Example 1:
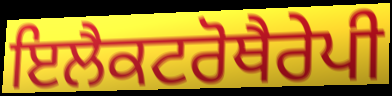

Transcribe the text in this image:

ਇਲੈਕਟਰੋਥੈਰੇਪੀ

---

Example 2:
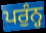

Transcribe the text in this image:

ਪਰੁੰਨ੍ਹ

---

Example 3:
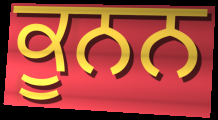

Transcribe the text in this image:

ਕੂਨਨ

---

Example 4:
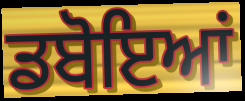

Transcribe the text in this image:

ਡਬੋਇਆਂ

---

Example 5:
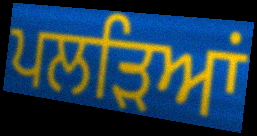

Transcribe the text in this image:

ਪਲੜਿਆਂ